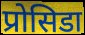
प्रोसिडा